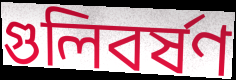
গুলিবৰ্ষণ